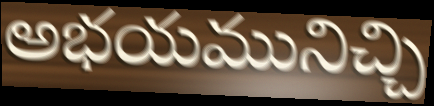
అభయమునిచ్చి